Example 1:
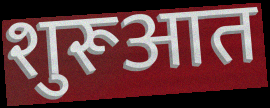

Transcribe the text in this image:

शुरूआत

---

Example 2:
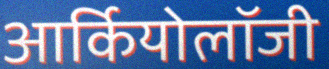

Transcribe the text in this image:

आर्कियोलॉजी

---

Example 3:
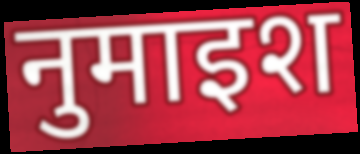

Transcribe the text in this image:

नुमाइश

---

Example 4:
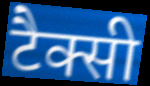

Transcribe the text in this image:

टैक्सी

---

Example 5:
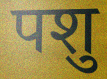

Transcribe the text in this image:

पशु